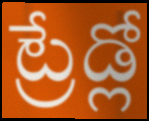
ట్రేడ్లో